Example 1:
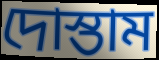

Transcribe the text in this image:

দোস্তাম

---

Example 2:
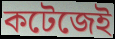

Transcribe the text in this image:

কটেজেই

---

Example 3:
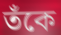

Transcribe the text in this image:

তঁকে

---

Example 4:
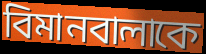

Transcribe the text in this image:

বিমানবালাকে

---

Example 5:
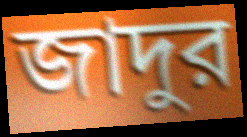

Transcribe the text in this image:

জাদুর